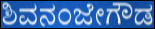
ಶಿವನಂಜೇಗೌಡ